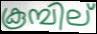
കൂമ്പില്